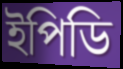
ইপিডি